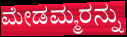
ಮೇಡಮ್ಮರನ್ನು